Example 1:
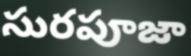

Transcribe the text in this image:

సురపూజా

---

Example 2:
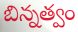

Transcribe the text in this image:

బిన్నత్వం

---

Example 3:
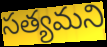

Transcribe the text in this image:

సత్యమని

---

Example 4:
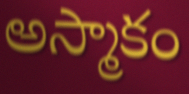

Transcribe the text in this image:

అస్మాకం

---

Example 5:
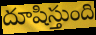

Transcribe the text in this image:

దూషిస్తుంది